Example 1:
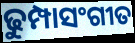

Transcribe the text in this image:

ଢୁମ୍ପାସଂଗୀତ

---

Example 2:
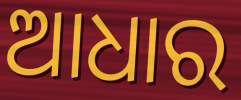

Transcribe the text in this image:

ଆଧାର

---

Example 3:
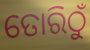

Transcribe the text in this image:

ତୋରିଠୁଁ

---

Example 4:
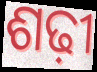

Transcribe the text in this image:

ଶଢ଼ୀ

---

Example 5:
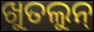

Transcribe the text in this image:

ଖୁତଲୁନ୍